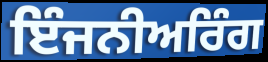
ਇੰਜਨੀਅਰਿੰਗ